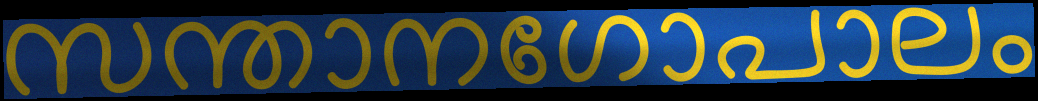
സന്താനഗോപാലം